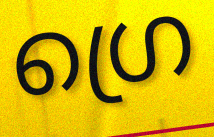
ഗ്രെ